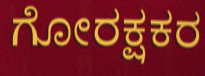
ಗೋರಕ್ಷಕರ